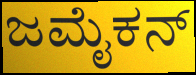
ಜಮೈಕನ್